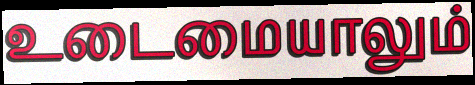
உடைமையாலும்